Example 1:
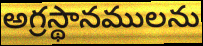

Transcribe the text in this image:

అగ్రస్థానములను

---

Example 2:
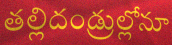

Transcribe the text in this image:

తల్లిదండ్రుల్లోనూ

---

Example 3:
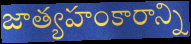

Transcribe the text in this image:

జాత్యహంకారాన్ని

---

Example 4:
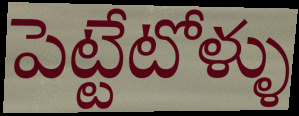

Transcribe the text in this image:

పెట్టేటోళ్ళు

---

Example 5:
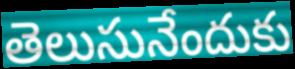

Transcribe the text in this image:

తెలుసునేందుకు